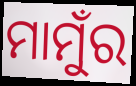
ମାମୁଁର